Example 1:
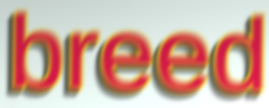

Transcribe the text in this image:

breed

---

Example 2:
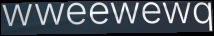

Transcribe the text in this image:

wweewewq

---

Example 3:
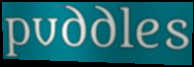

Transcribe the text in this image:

puddles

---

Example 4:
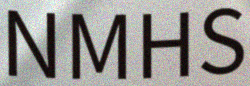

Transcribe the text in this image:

NMHS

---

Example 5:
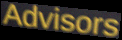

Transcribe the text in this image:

Advisors